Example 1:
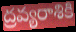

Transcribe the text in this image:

ద్రవ్యరాశికి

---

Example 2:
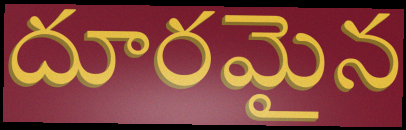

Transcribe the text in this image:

దూరమైన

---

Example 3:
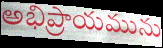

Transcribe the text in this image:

అభిప్రాయమును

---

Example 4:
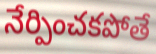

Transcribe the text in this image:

నేర్పించకపోతే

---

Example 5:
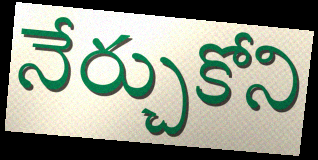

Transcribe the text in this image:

నేర్చుకోని